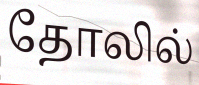
தோலில்